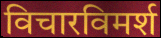
विचारविमर्श